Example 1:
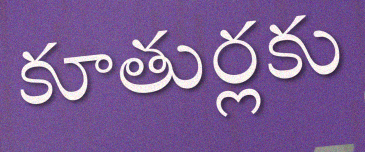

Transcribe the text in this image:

కూతుర్లకు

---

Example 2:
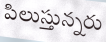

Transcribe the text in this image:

పిలుస్తున్నరు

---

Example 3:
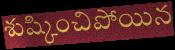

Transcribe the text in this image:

శుష్కించిపోయిన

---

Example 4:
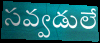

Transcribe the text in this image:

సవ్వడులే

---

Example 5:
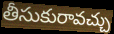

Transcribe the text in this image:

తీసుకురావచ్చు